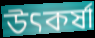
উৎকর্ষা